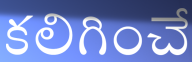
కలిగించే